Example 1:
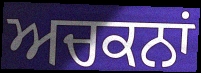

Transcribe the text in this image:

ਅਚਕਨਾਂ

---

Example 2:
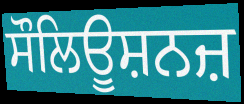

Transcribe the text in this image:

ਸੌਲਿਊਸ਼ਨਜ਼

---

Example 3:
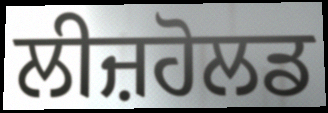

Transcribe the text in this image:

ਲੀਜ਼ਹੋਲਡ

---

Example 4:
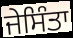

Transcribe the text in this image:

ਜੇਸਿੰਤਾ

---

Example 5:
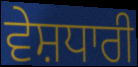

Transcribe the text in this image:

ਵੇਸ਼ਧਾਰੀ